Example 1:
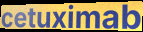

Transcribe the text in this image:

cetuximab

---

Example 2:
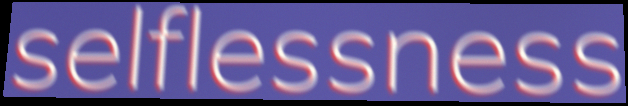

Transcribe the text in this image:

selflessness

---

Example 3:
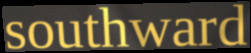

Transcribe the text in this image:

southward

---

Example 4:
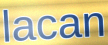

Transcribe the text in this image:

lacan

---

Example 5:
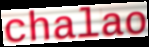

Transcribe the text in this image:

chalao